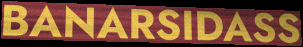
BANARSIDASS